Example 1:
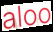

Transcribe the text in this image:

aloo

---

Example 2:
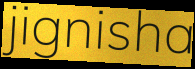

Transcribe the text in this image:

jignisha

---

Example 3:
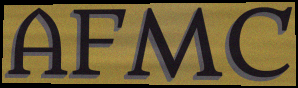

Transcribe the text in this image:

AFMC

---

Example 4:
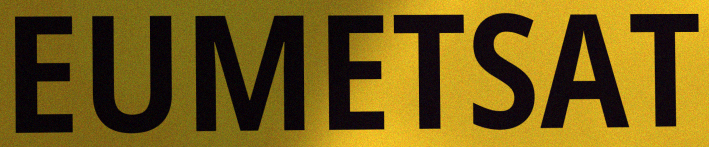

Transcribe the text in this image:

EUMETSAT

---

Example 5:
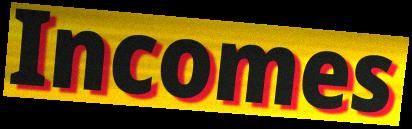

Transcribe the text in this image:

Incomes